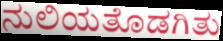
ನುಲಿಯತೊಡಗಿತು